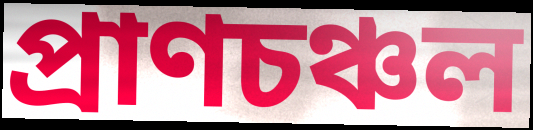
প্রাণচঞ্চল